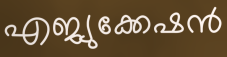
എജ്യുക്കേഷൻ